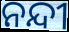
ନନ୍ଦୀ